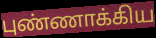
புண்ணாக்கிய